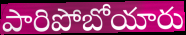
పారిపోబోయారు